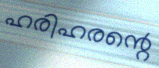
ഹരിഹരന്റെ